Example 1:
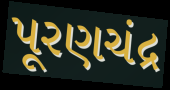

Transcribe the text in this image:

પૂરણચંદ્ર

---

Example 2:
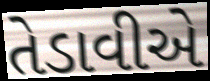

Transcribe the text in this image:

તેડાવીએ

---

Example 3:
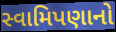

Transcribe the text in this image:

સ્વામિપણાનો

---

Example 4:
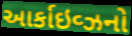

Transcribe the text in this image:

આર્કાઇવ્ઝનો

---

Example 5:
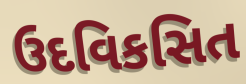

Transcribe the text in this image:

ઉદવિકસિત